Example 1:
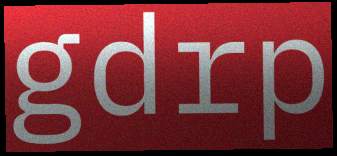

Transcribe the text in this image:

gdrp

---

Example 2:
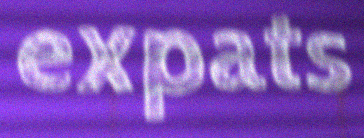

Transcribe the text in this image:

expats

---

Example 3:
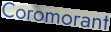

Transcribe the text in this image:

Coromorant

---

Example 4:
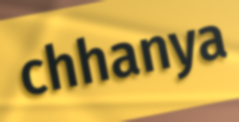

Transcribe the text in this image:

chhanya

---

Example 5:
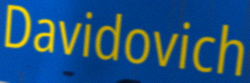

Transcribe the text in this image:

Davidovich